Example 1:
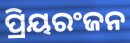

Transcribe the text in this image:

ପ୍ରିୟରଂଜନ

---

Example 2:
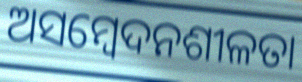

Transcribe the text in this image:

ଅସମ୍ବେଦନଶୀଳତା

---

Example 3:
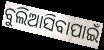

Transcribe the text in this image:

ବୁଲିଆସିବାପାଇଁ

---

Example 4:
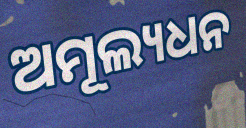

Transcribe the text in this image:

ଅମୂଲ୍ୟଧନ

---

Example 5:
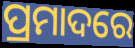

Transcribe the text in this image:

ପ୍ରମାଦରେ